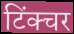
टिंक्चर